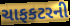
ચાફકટરની